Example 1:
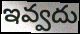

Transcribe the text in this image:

ఇవ్వదు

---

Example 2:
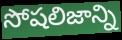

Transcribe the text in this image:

సోషలిజాన్ని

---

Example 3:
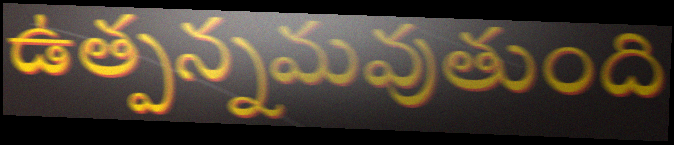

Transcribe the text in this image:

ఉత్పన్నమవుతుంది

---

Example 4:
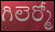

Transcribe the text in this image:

గిలెర్మో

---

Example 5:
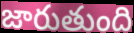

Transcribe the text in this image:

జారుతుంది